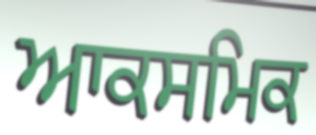
ਆਕਸਮਿਕ